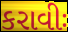
કરાવીઃ